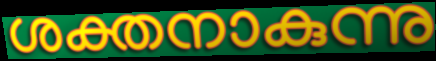
ശക്തനാകുന്നു